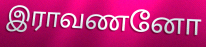
இராவணனோ